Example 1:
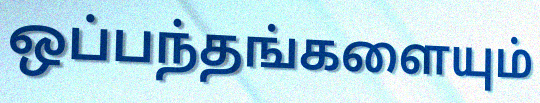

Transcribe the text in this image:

ஒப்பந்தங்களையும்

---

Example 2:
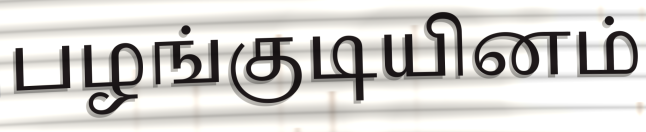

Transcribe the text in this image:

பழங்குடியினம்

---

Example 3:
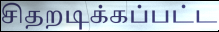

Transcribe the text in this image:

சிதறடிக்கப்பட்ட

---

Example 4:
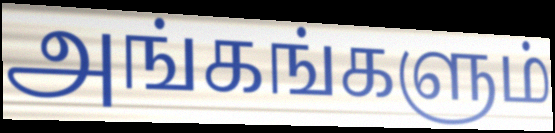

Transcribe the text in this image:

அங்கங்களும்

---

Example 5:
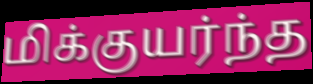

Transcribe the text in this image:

மிக்குயர்ந்த